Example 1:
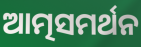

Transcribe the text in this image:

ଆତ୍ମସମର୍ଥନ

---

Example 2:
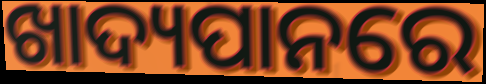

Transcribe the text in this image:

ଖାଦ୍ୟପାନରେ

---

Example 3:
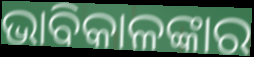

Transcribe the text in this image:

ଭାବିକାଳଙ୍କାର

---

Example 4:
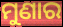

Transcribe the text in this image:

ମୁଣାର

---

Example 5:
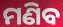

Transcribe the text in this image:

ମଣିବ